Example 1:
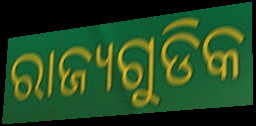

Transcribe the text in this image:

ରାଜ୍ୟଗୁଡିକ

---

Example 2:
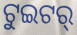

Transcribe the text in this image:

ଟୁଇଟର୍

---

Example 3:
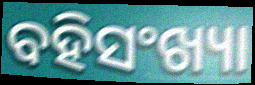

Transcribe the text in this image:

ବହିସଂଖ୍ୟା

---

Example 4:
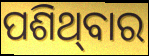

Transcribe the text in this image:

ପଶିଥ୍‌ବାର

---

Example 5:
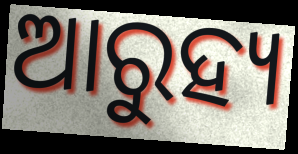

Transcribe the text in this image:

ଆରୁହ୍ୟ